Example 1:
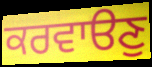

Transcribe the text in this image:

ਕਰਵਾੳਣੁ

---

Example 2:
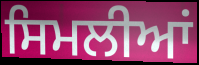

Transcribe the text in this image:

ਸਿਮਲੀਆਂ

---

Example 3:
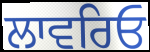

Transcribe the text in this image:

ਲਾਵਰਿਓ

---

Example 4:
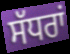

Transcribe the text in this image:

ਸੱਧਰਾਂ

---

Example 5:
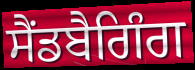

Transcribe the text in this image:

ਸੈਂਡਬੈਗਿੰਗ